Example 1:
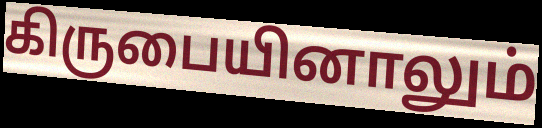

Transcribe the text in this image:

கிருபையினாலும்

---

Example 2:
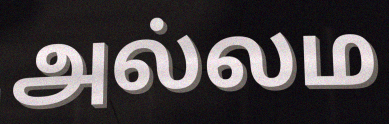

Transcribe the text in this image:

அல்லம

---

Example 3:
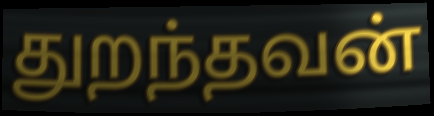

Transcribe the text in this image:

துறந்தவன்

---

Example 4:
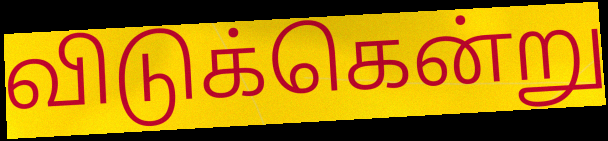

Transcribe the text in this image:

விடுக்கென்று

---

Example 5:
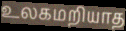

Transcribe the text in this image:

உலகமறியாத